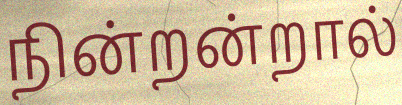
நின்றன்றால்